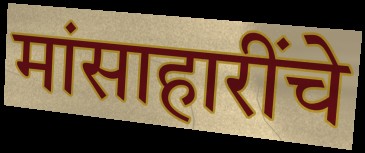
मांसाहारींचे